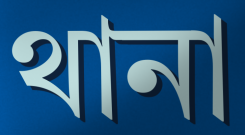
থানা